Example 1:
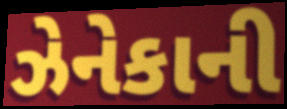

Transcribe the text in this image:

ઝેનેકાની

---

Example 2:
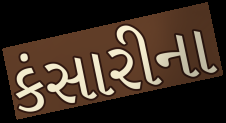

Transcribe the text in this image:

કંસારીના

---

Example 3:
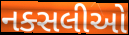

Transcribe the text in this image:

નક્સલીઓ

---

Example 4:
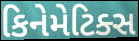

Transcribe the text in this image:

કિનેમેટિક્સ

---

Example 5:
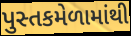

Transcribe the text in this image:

પુસ્તકમેળામાંથી